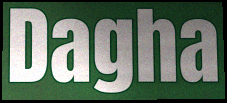
Dagha